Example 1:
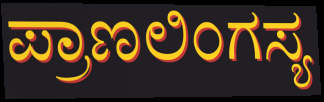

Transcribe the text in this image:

ಪ್ರಾಣಲಿಂಗಸ್ಯ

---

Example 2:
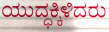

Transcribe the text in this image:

ಯುದ್ಧಕ್ಕಿಳಿದರು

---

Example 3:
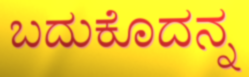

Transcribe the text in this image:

ಬದುಕೊದನ್ನ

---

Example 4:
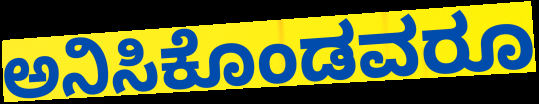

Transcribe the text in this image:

ಅನಿಸಿಕೊಂಡವರೂ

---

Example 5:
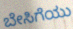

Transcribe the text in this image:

ಬೇಸಿಗೆಯು